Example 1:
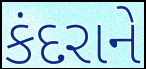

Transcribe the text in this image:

કંદરાને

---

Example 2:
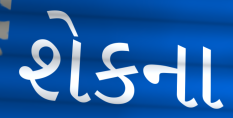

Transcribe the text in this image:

શેકના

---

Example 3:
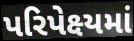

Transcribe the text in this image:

પરિપેક્ષ્યમાં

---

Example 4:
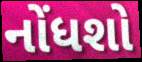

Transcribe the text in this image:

નોંધશો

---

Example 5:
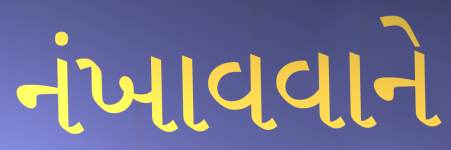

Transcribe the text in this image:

નંખાવવાને